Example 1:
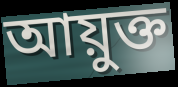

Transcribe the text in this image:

আয়ুক্ত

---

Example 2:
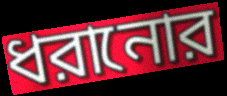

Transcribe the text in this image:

ধরানোর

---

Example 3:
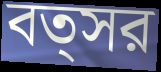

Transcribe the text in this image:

বত্সর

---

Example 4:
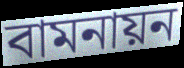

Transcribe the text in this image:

বামনায়ন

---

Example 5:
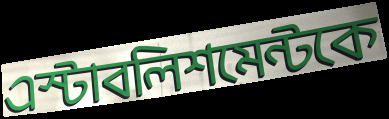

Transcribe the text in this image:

এস্টাবলিশমেন্টকে